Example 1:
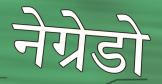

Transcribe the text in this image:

नेग्रेडो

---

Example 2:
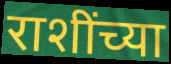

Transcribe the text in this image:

राशींच्या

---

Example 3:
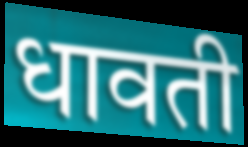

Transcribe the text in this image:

धावती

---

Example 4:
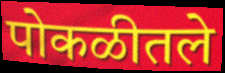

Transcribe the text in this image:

पोकळीतले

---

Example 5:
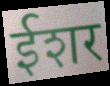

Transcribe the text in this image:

ईशर